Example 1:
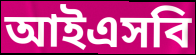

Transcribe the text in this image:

আইএসবি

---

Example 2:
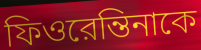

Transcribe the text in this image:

ফিওরেন্তিনাকে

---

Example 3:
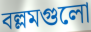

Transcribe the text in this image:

বল্লমগুলো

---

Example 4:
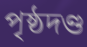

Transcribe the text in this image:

পৃষ্ঠদণ্ড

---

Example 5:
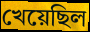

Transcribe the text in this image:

খেয়েছিল